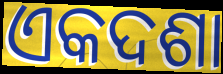
ଏକଦଶା